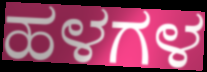
ಹಳಗಳ